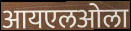
आयएलओला